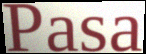
Pasa